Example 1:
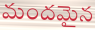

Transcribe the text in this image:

మందమైన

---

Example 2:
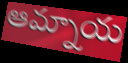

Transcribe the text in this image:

ఆమ్నాయ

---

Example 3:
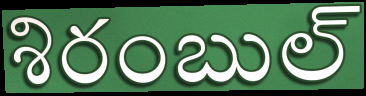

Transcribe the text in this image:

శిరంబుల్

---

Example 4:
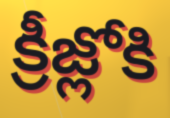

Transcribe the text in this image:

క్రీజ్లోకి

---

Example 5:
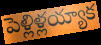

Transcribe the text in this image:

పెళ్లిళ్లయ్యాక